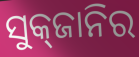
ସୁକ୍‌ଜାନିର